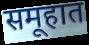
समूहात